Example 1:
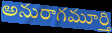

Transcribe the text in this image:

అనురాగమూర్తి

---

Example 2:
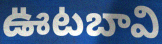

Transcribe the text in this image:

ఊటబావి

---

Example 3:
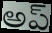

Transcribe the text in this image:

అప్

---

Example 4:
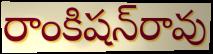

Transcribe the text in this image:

రాంకిషన్‌రావు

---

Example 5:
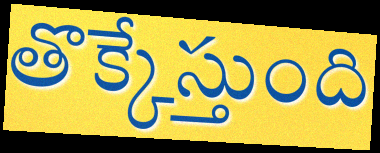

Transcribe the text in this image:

తొక్కేస్తుంది